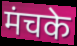
मंचके